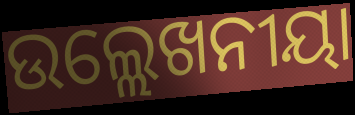
ଉଲ୍ଲେଖନୀୟା